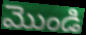
మొండి